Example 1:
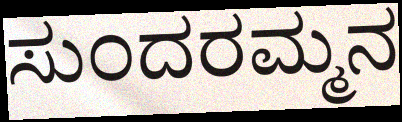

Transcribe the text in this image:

ಸುಂದರಮ್ಮನ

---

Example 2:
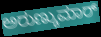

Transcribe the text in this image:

ಅರುಣ್ಕುಮಾರ್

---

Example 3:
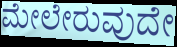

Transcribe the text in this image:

ಮೇಲೇರುವುದೇ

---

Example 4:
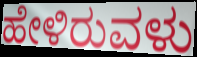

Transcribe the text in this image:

ಹೇಳಿರುವಳು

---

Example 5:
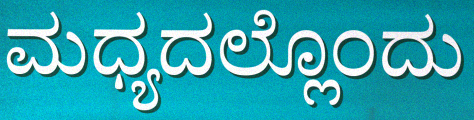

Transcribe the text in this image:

ಮಧ್ಯದಲ್ಲೊಂದು